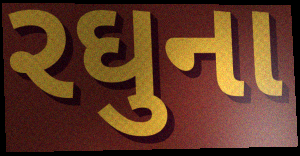
રઘુના